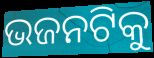
ଭଜନଟିକୁ